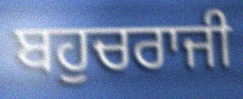
ਬਹੁਚਰਾਜੀ